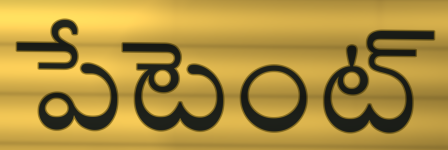
పేటెంట్